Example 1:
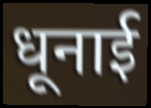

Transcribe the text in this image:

धूनाई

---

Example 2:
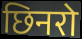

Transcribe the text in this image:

छिनरो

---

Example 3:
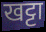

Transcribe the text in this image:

खट्टा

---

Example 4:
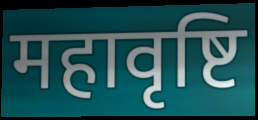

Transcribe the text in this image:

महावृष्टि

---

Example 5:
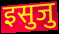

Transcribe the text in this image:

इसुजु